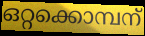
ഒറ്റക്കൊമ്പന്